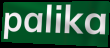
palika